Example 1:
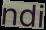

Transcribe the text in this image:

ndi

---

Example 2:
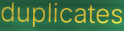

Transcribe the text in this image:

duplicates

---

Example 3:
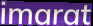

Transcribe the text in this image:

imarat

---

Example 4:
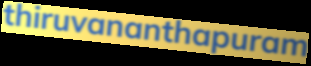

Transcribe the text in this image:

thiruvananthapuram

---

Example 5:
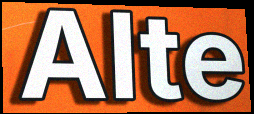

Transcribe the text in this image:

Alte